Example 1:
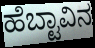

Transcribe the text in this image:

ಹೆಬ್ಟಾವಿನ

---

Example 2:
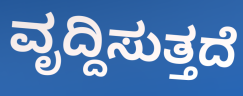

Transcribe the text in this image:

ವೃದ್ದಿಸುತ್ತದೆ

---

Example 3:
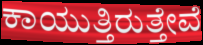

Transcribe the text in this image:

ಕಾಯುತ್ತಿರುತ್ತೇವೆ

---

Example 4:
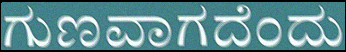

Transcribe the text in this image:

ಗುಣವಾಗದೆಂದು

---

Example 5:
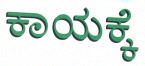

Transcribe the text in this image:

ಕಾಯಕ್ಕೆ